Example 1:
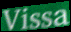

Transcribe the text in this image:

Vissa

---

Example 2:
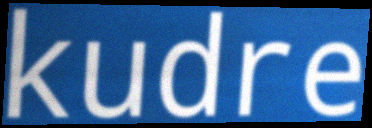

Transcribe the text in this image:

kudre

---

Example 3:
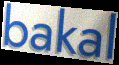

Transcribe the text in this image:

bakal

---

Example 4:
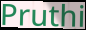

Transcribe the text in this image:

Pruthi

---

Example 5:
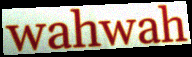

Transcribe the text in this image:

wahwah